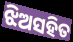
ଝିଅସହିତ